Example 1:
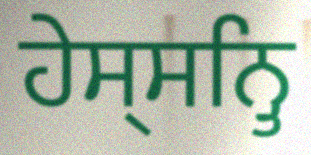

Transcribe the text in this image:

ਹੇਸ੍ਸਨ੍ਤਿ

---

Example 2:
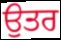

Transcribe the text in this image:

ਉੁਤਰ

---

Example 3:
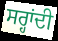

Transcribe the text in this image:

ਸਰ੍ਹਾਂਦੀ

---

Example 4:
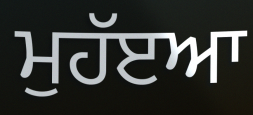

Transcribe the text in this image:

ਮੁਹੱੲਆ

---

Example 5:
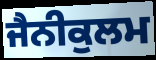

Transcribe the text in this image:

ਜੈਨੀਕੁਲਮ